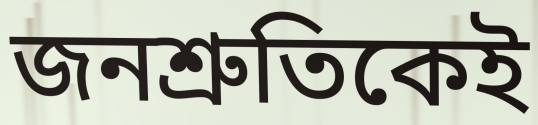
জনশ্রুতিকেই